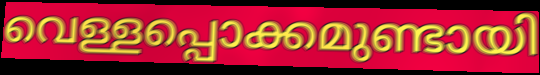
വെള്ളപ്പൊക്കമുണ്ടായി